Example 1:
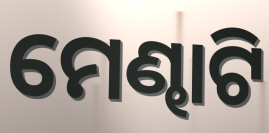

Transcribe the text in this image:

ମେଣ୍ଢାଟି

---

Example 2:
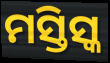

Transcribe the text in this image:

ମସ୍ତିସ୍କ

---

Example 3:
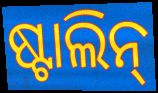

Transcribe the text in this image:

ଷ୍ଟାଲିନ୍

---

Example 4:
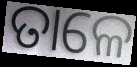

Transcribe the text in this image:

ତାଳେ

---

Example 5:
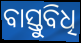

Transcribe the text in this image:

ବାସ୍ତୁବିଧି